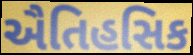
ઐતિહસિક